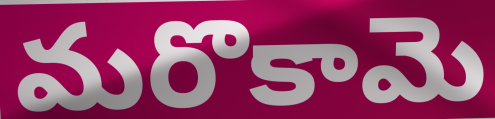
మరొకామె